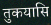
तुकयासि